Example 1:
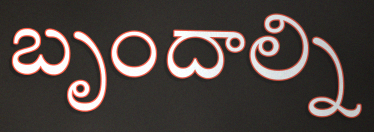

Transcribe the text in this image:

బృందాల్ని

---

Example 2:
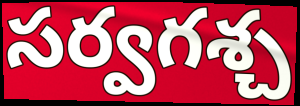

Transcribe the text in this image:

సర్వగశ్చ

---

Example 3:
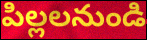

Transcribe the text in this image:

పిల్లలనుండి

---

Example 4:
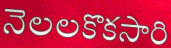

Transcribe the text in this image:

నెలలకొకసారి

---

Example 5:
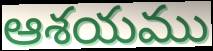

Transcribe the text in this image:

ఆశయము